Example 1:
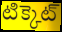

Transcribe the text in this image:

టిక్కెట్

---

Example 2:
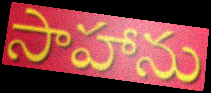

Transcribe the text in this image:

సాహాను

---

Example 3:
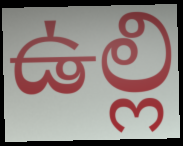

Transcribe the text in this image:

ఉల్లి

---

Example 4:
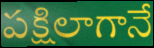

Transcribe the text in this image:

పక్షిలాగానే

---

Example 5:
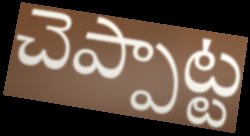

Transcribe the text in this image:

చెప్పాట్ట